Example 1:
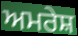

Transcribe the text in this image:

ਅਮਰੇਸ਼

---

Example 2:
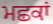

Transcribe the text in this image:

ਮਛਕਾਂ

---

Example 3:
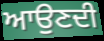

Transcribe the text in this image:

ਆਉਣਦੀ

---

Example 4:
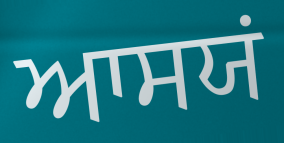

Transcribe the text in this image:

ਆਸਯਂ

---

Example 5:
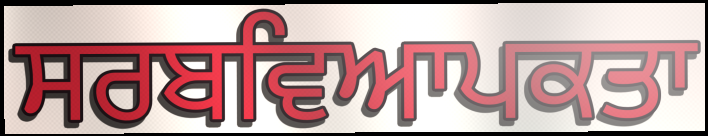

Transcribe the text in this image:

ਸਰਬਵਿਆਪਕਤਾ